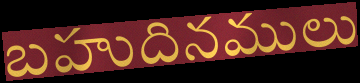
బహుదినములు